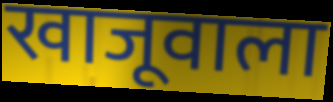
खाजूवाला